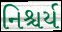
નિશ્ચર્ય